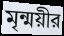
মৃন্ময়ীর